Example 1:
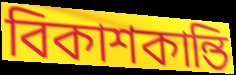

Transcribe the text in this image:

বিকাশকান্তি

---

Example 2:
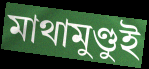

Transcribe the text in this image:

মাথামুণ্ডুই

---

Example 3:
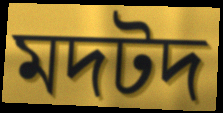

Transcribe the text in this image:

মদটদ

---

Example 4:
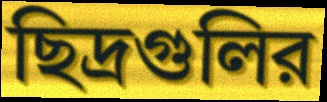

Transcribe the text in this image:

ছিদ্রগুলির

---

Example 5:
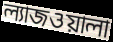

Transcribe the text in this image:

ল্যাজওয়ালা